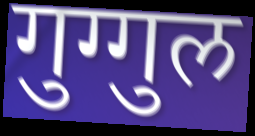
गुग्गुल